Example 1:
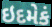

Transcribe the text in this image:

ઇદમેકં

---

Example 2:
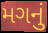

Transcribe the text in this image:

મગનું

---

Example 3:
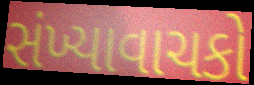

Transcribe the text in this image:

સંખ્યાવાચકો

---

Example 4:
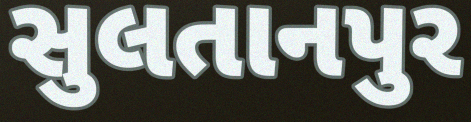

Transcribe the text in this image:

સુલતાનપુર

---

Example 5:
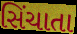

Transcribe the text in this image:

સિંચાતા